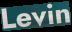
Levin